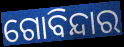
ଗୋବିନ୍ଦାର